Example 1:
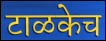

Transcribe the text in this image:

टाळकेच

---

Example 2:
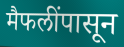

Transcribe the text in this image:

मैफलींपासून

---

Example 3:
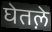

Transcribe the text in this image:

घेतल़े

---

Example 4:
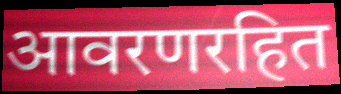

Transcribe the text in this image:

आवरणरहित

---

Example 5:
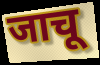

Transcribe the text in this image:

जाचू